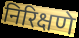
निरिक्षणे